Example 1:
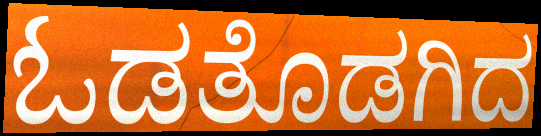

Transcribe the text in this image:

ಓಡತೊಡಗಿದ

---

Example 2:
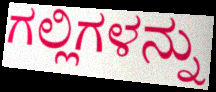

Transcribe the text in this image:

ಗಲ್ಲಿಗಳನ್ನು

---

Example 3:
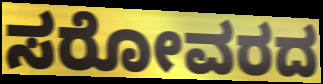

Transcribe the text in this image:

ಸರೋವರದ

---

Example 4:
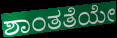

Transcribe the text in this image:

ಶಾಂತತೆಯೇ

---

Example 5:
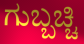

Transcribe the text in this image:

ಗುಬ್ಬಚ್ಚಿ